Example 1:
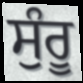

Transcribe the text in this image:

ਸੁੰਰੂ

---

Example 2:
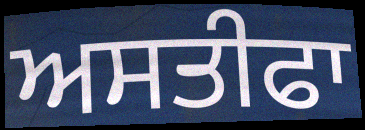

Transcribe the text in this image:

ਅਸਤੀਫਾ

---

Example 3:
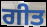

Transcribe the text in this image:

ਗੀਤ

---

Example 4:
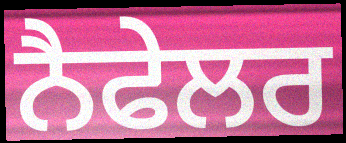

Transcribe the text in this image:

ਨੈਫੇਲਰ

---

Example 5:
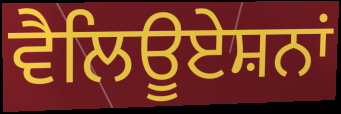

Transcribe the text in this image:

ਵੈਲਿਊਏਸ਼ਨਾਂ